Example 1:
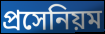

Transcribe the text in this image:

প্রসেনিয়ম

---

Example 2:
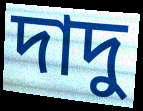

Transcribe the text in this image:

দাদু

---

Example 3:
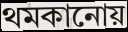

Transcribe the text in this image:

থমকানোয়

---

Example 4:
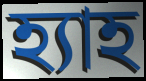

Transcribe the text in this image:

হ্যাহ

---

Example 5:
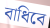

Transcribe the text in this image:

বাধিবে